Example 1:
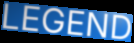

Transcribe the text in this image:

LEGEND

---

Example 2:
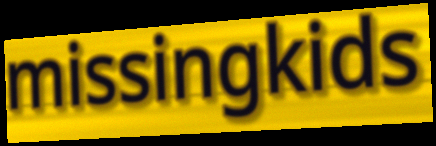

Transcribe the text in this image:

missingkids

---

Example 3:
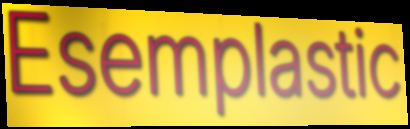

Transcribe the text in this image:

Esemplastic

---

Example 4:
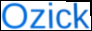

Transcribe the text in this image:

Ozick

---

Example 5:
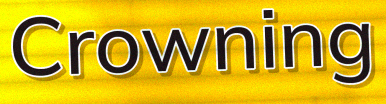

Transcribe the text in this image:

Crowning